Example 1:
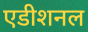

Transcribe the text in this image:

एडीशनल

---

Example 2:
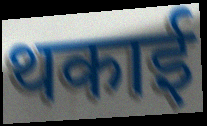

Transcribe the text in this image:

थकाई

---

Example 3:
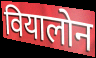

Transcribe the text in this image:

वियालोन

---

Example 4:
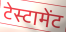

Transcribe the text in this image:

टेस्टामेंट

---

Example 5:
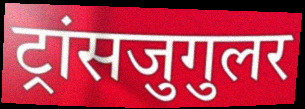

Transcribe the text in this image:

ट्रांसजुगुलर